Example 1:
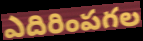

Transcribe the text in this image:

ఎదిరింపగల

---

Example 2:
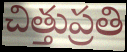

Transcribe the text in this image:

చిత్తుప్రతి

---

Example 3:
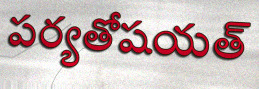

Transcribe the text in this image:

పర్యతోషయత్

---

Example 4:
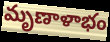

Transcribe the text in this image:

మృణాళాభం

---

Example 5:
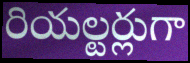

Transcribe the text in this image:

రియల్టర్లుగా